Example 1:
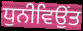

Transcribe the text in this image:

ਧੁਨੀਵਿਉਂਤ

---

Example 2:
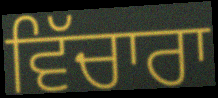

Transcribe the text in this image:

ਵਿੱਚਾਰਾ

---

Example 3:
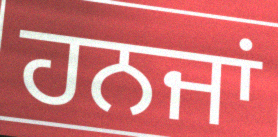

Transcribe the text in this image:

ਹਨਜਾਂ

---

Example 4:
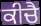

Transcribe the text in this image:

ਕੀਚੈ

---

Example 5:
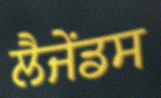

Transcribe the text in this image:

ਲੈਜੇਂਡਸ